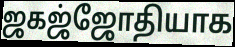
ஜகஜ்ஜோதியாக